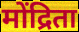
मोंद्रिता